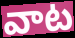
వాట